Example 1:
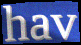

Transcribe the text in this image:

hav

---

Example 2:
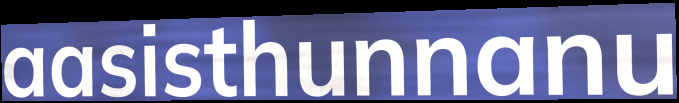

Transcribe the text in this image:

aasisthunnanu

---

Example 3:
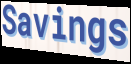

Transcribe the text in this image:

Savings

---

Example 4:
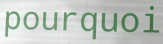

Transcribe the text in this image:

pourquoi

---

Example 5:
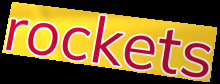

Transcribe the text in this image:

rockets